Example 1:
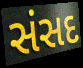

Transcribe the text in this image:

સંસદ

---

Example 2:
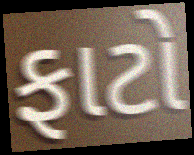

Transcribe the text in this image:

ફાટો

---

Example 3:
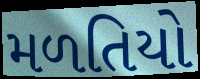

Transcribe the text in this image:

મળતિયો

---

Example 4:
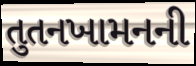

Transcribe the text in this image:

તુતનખામનની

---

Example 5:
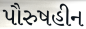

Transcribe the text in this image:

પૌરુષહીન